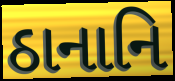
ઠાનાનિ